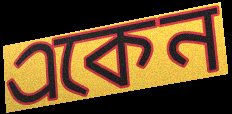
একেন